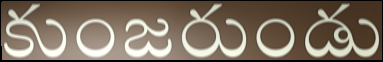
కుంజరుండు